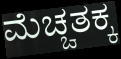
ಮೆಚ್ಚತಕ್ಕ